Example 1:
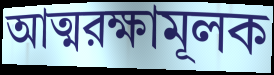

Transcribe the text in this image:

আত্মরক্ষামূলক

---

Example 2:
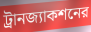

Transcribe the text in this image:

ট্রানজ্যাকশনের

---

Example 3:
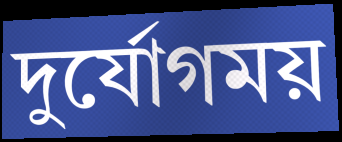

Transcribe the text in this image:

দুর্যোগময়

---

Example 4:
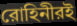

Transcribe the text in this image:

রোহিনীরই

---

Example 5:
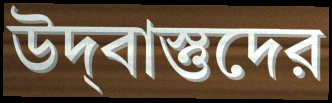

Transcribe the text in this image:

উদ্‌বাস্তুদের